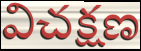
విచక్షణ